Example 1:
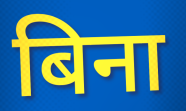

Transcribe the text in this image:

बिना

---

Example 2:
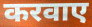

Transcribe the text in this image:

करवाए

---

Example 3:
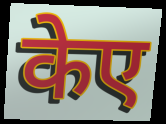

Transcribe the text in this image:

केए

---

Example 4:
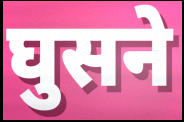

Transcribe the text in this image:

घुसने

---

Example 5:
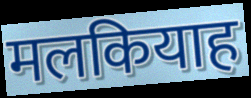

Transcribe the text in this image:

मलकियाह